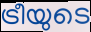
ട്രീയുടെ